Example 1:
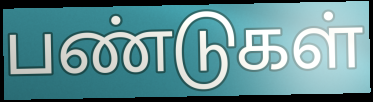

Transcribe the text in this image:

பண்டுகள்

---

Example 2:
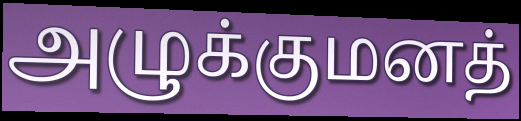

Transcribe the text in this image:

அழுக்குமனத்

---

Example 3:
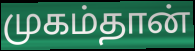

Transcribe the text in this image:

முகம்தான்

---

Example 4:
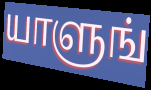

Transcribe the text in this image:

யாளுங்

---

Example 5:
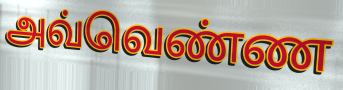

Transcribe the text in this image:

அவ்வெண்ண